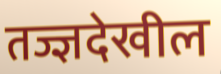
तज्ज्ञदेखील